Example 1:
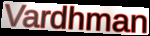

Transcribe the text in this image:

Vardhman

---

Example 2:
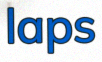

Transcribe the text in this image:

laps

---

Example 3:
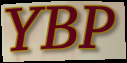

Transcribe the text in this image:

YBP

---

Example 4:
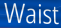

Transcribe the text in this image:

Waist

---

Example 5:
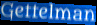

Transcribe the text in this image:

Gettelman